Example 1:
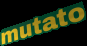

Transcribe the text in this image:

mutato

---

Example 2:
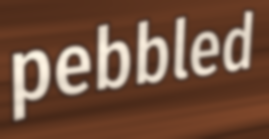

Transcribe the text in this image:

pebbled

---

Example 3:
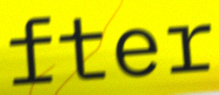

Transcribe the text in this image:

fter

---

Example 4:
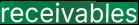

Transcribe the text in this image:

receivables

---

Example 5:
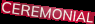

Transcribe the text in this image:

CEREMONIAL